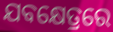
ଯବକ୍ଷେତ୍ରରେ